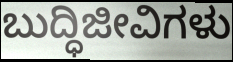
ಬುದ್ಧಿಜೀವಿಗಳು